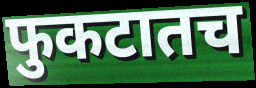
फुकटातच